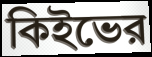
কিইভের